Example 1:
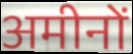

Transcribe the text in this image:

अमीनों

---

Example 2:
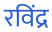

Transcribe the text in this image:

रविंद्र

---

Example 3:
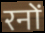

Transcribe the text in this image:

रनों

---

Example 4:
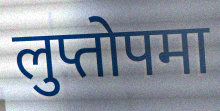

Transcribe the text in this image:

लुप्तोपमा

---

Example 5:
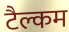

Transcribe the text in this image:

टैल्कम